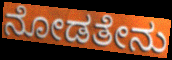
ನೋಡತೇನು